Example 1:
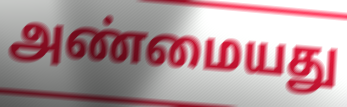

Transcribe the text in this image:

அண்மையது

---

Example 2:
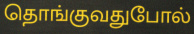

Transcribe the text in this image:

தொங்குவதுபோல்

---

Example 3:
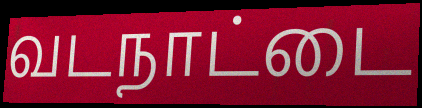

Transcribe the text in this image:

வடநாட்டை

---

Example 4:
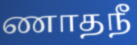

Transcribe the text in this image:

ணாதநீ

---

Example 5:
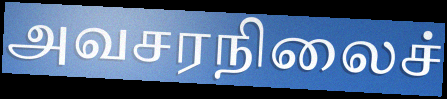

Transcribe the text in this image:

அவசரநிலைச்